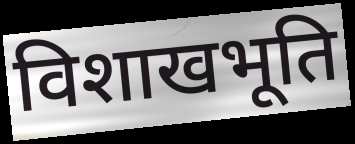
विशाखभूति